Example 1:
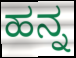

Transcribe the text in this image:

ಹನ್ನ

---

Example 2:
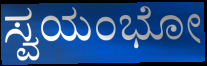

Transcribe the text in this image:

ಸ್ವಯಂಭೋ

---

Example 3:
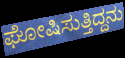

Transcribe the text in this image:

ಘೋಷಿಸುತ್ತಿದ್ದನು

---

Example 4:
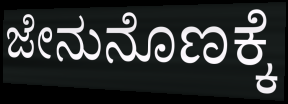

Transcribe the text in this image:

ಜೇನುನೊಣಕ್ಕೆ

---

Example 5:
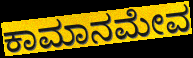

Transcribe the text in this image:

ಕಾಮಾನಮೇವ